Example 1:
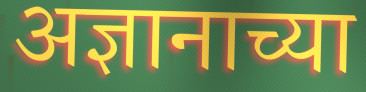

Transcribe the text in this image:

अज्ञानाच्या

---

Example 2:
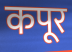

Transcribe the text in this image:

कपूर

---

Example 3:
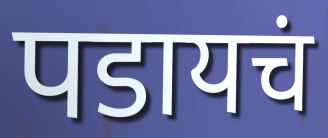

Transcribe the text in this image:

पडायचं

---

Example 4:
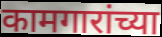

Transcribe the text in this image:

कामगारांच्या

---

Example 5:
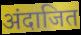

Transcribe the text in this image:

अंदाजित